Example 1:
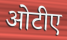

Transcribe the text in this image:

ओटीए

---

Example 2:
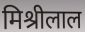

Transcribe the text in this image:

मिश्रीलाल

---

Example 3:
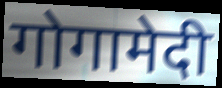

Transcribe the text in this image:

गोगामेदी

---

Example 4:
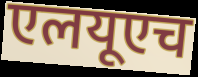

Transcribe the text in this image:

एलयूएच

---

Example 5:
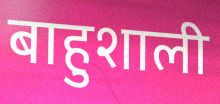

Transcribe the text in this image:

बाहुशाली